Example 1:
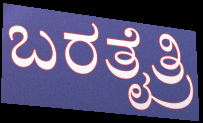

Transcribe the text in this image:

ಬರತೈತ್ರಿ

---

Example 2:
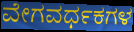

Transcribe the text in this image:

ವೇಗವರ್ಧಕಗಳ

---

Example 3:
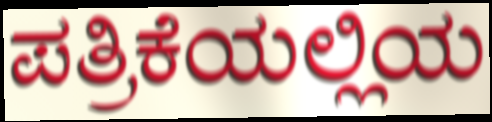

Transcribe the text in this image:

ಪತ್ರಿಕೆಯಲ್ಲಿಯ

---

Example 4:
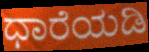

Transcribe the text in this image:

ಧಾರೆಯಡಿ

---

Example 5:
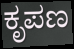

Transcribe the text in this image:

ಕೃಪಣ